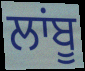
ਲਾਂਬੂ